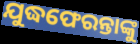
ଯୁଦ୍ଧଫେରନ୍ତାଙ୍କୁ